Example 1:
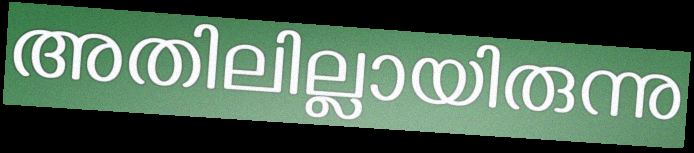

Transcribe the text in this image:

അതിലില്ലായിരുന്നു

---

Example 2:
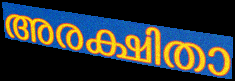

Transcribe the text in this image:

അരക്ഷിതാ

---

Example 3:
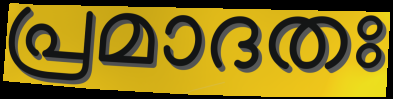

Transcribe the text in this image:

പ്രമാദതഃ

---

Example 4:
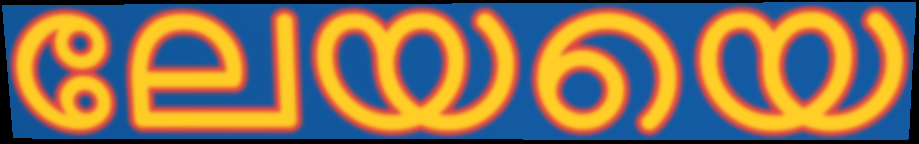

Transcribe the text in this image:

ലേയയെ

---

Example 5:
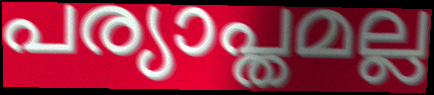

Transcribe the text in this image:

പര്യാപ്തമല്ല